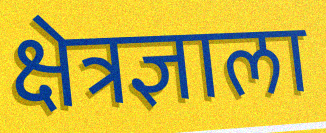
क्षेत्रज्ञाला